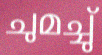
ചുമച്ചു്